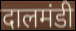
दालमंडी